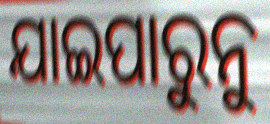
ଯାଇପାରୁନୁ